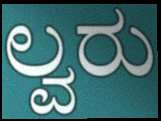
ಲ್ವರು